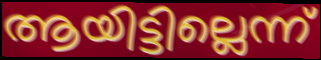
ആയിട്ടില്ലെന്ന്